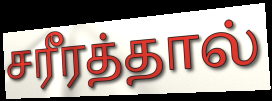
சரீரத்தால்